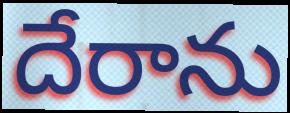
దేరాను